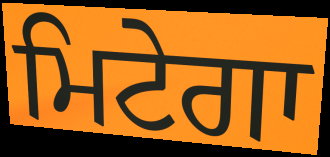
ਮਿਟੇਗਾ